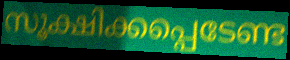
സൂക്ഷിക്കപ്പെടേണ്ട